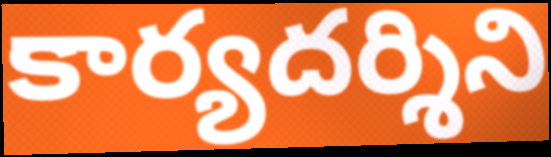
కార్యదర్శిని